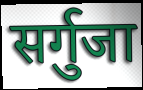
सर्गुजा